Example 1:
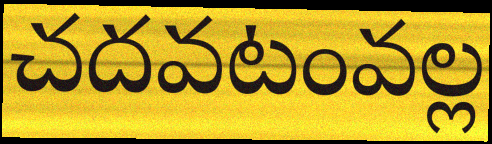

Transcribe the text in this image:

చదవటంవల్ల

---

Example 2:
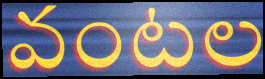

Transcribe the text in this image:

వంటల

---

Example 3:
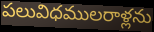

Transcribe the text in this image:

పలువిధములరాళ్లను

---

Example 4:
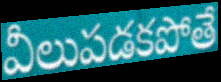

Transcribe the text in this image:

వీలుపడకపోతే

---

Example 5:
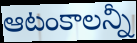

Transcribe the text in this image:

ఆటంకాలన్నీ